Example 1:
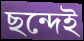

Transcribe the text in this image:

ছন্দেই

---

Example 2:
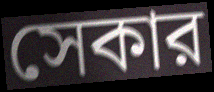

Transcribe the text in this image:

সেকার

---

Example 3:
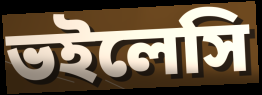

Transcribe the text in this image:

ভইলেসি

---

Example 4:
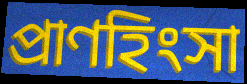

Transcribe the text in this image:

প্রাণহিংসা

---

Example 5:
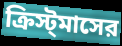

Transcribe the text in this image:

ক্রিস্ট্‌মাসের